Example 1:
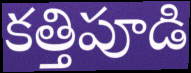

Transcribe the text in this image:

కత్తిపూడి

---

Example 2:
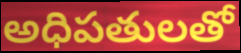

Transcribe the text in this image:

అధిపతులతో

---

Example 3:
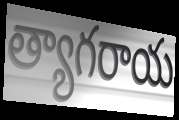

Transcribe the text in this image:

త్యాగరాయ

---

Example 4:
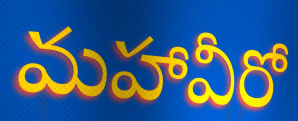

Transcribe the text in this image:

మహావీరో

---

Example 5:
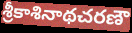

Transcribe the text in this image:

శ్రీకాశినాథచరణౌ